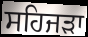
ਸਹਿਜੜਾ